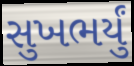
સુખભર્યું